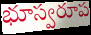
భూస్వరూప